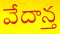
వేదాన్త